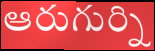
ఆరుగుర్ని